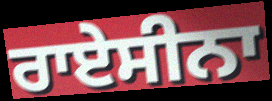
ਰਾਏਸੀਨਾ